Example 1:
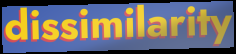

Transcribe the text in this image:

dissimilarity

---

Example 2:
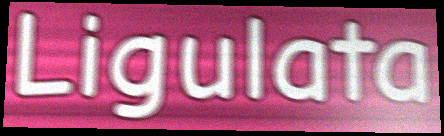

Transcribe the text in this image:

Ligulata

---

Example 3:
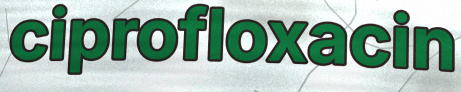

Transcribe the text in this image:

ciprofloxacin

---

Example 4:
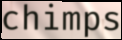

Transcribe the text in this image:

chimps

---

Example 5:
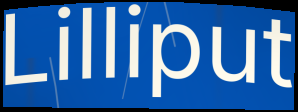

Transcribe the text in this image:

Lilliput